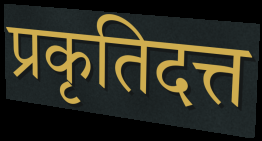
प्रकृतिदत्त